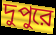
দুপুরে